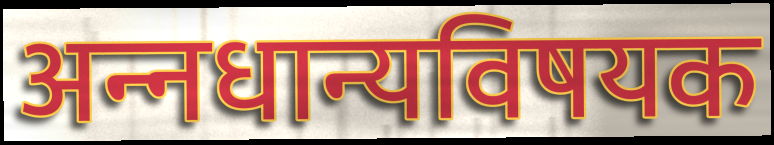
अन्नधान्यविषयक